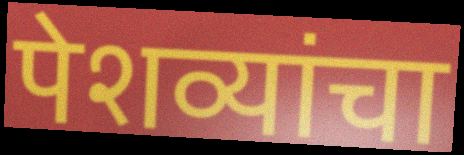
पेशव्यांचा